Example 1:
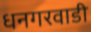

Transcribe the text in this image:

धनगरवाडी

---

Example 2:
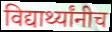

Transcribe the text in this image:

विद्यार्थ्यांनीच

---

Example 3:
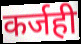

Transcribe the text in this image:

कर्जही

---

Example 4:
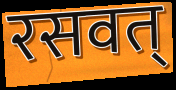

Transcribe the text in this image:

रसवत्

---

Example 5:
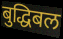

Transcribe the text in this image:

बुद्धिबल